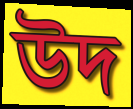
উদ